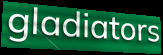
gladiators